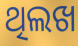
ଥିଲଖ